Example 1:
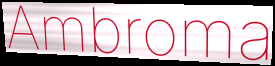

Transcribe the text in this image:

Ambroma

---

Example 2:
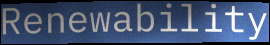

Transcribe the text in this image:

Renewability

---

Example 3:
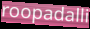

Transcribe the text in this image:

roopadalli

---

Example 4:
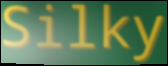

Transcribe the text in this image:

Silky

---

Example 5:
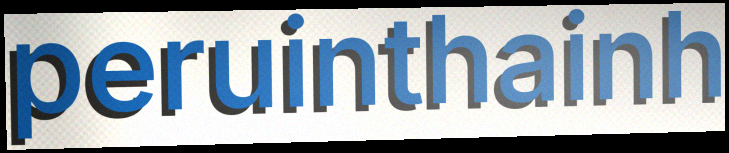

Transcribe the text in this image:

peruinthainh